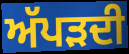
ਅੱਪੜਦੀ